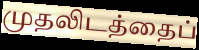
முதலிடத்தைப்